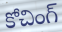
కోచింగ్